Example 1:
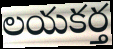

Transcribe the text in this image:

లయకర్త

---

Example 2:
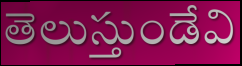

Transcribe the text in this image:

తెలుస్తుండేవి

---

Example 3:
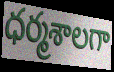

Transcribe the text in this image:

ధర్మశాలగా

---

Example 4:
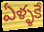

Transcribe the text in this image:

ఏళ్ళకే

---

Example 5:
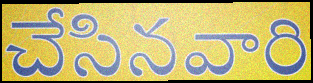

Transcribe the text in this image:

చేసినవారి